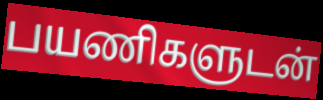
பயணிகளுடன்